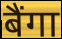
बैंगा